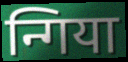
न्गिया